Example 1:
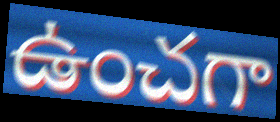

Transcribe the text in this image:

ఉంచగా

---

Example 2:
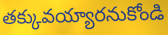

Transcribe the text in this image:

తక్కువయ్యారనుకోండి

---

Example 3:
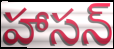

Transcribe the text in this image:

హాసన్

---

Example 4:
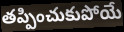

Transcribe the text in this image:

తప్పించుకుపోయే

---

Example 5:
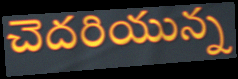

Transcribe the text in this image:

చెదరియున్న